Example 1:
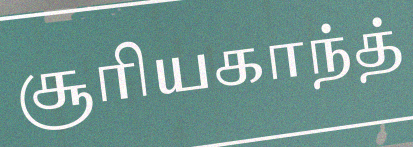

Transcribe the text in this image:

சூரியகாந்த்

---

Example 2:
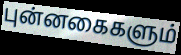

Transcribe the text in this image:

புன்னகைகளும்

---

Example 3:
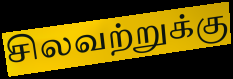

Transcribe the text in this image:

சிலவற்றுக்கு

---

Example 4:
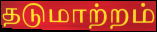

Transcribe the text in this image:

தடுமாற்றம்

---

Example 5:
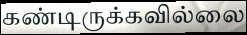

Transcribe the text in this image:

கண்டிருக்கவில்லை